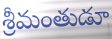
శ్రీమంతుడూ